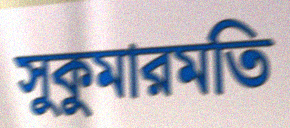
সুকুমারমতি